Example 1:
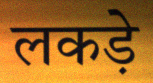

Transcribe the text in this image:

लकड़े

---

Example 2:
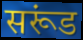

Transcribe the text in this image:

सरूंड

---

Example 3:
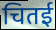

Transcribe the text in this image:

चितई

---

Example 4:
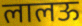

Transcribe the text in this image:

लालऊ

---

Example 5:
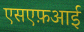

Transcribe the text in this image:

एसएफ़आई